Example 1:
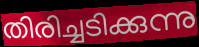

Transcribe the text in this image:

തിരിച്ചടിക്കുന്നു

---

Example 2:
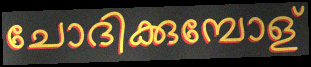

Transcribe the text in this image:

ചോദിക്കുമ്പോള്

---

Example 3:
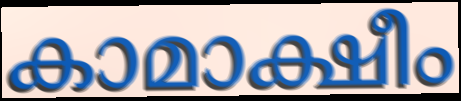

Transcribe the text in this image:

കാമാക്ഷീം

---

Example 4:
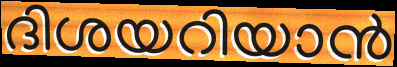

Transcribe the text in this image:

ദിശയറിയാൻ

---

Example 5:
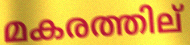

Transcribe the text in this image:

മകരത്തില്